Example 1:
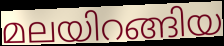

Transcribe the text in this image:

മലയിറങ്ങിയ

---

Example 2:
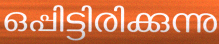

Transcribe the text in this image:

ഒപ്പിട്ടിരിക്കുന്നു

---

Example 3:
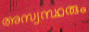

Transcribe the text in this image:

അസ്വസ്ഥരും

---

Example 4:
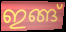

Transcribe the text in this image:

ഇങ്ങ്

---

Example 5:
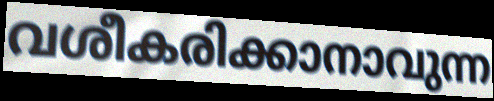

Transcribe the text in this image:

വശീകരിക്കാനാവുന്ന